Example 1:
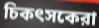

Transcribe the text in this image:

চিকৎসকেরা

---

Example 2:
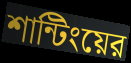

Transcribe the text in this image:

শান্টিংয়ের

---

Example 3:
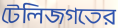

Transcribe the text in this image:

টেলিজগতের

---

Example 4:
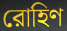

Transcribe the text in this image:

রোহিণ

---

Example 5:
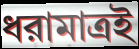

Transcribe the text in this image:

ধরামাত্রই